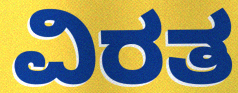
ವಿರತ